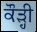
ਕੌੜ੍ਹੀ